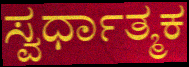
ಸ್ವರ್ಧಾತ್ಮಕ